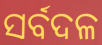
ସର୍ବଦଳ